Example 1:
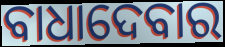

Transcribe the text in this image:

ବାଧାଦେବାର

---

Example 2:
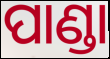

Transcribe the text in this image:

ପାଣ୍ଡା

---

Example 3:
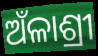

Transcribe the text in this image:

ଅଁଳାଶ୍ରୀ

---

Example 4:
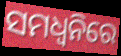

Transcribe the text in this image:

ସମଧ୍ୱନିରେ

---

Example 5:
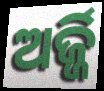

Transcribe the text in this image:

ଅର୍ଜ୍ଜି